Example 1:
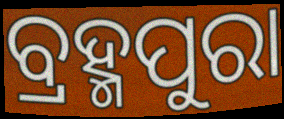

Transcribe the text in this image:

ବ୍ରହ୍ମପୁରା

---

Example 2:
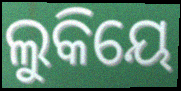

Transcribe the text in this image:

ଲୁକିୟେ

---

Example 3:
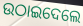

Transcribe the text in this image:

ଉଠାଇଦେଲେ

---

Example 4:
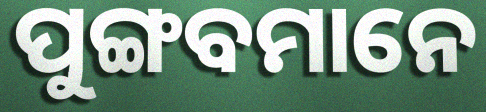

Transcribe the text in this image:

ପୁଙ୍ଗବମାନେ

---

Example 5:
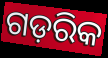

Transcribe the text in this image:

ଗଡ଼ରିକ